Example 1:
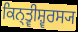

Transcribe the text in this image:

ਕਿਨ੍ਤ੍ਵੀਸ਼੍ਵਰਸ੍ਯ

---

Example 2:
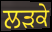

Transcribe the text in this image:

ਲਡ਼ਕੇ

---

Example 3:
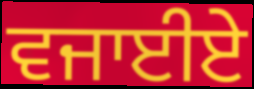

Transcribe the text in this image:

ਵਜਾਈਏ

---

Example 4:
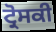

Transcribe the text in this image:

ਟ੍ਰੋਸਕੀ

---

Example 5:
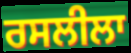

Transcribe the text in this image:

ਰਸਲੀਲਾ